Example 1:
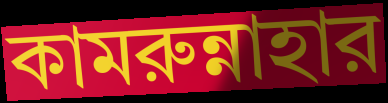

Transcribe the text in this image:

কামরুন্নাহার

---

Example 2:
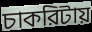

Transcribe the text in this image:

চাকরিটায়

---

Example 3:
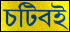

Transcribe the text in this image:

চটিবই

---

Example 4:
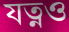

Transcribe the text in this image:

যত্নও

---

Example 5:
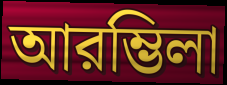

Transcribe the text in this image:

আরম্ভিলা